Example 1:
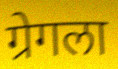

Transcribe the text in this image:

ग्रेगला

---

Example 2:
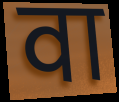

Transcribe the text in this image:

वा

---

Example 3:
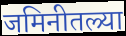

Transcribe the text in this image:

जमिनीतल्या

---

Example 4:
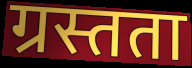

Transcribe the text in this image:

ग्रस्तता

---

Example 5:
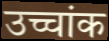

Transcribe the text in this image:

उच्चांक